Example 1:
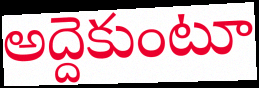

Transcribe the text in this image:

అద్దెకుంటూ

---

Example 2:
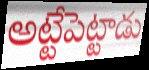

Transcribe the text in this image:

అట్టేపెట్టాడు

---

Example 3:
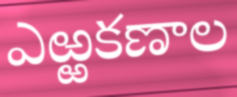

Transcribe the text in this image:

ఎఱ్ఱకణాల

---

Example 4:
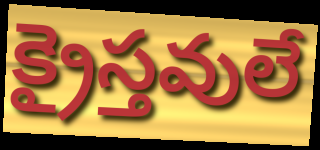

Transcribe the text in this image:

క్రైస్తవులే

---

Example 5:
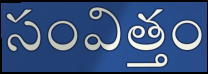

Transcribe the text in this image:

సంవిత్తం